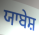
ਯਾਬੇਸ਼